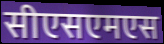
सीएसएमएस